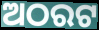
ଅଠରଟ